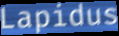
Lapidus